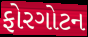
ફોરગોટન